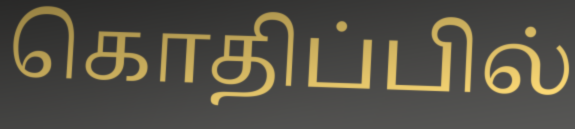
கொதிப்பில்